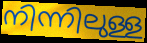
നിന്നിലുള്ള